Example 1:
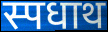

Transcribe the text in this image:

स्पधाथ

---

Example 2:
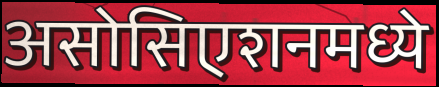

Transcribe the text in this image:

असोसिएशनमध्ये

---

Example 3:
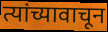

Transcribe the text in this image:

त्यांच्यावाचून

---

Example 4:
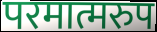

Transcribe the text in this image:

परमात्मरुप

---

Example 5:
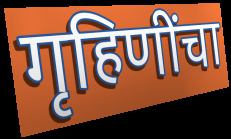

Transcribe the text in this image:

गृहिणींचा